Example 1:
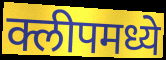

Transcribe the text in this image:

क्लीपमध्ये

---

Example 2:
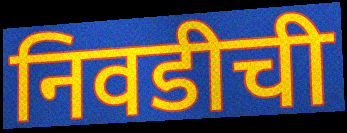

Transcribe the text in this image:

निवडीची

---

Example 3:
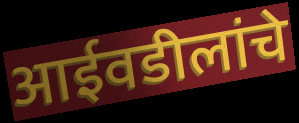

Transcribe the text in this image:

आईवडीलांचे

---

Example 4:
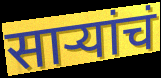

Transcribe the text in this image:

साऱ्यांचं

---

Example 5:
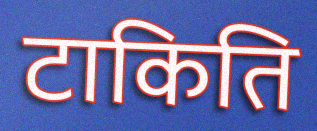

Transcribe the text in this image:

टाकिति